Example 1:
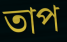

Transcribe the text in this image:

তাপ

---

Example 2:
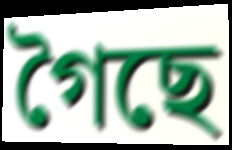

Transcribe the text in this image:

গৈছে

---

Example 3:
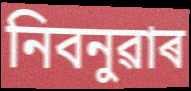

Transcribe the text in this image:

নিবনুৱাৰ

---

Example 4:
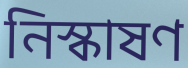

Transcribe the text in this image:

নিস্কাষণ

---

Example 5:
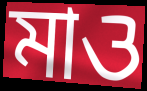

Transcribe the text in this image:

মাও